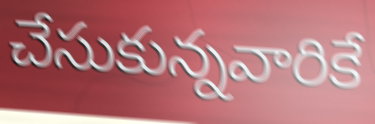
చేసుకున్నవారికే